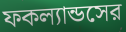
ফকল্যান্ডসের